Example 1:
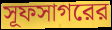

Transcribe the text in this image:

সূফসাগরের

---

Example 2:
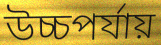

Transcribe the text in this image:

উচ্চপর্যায়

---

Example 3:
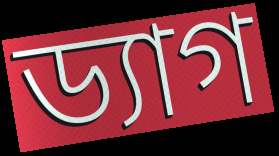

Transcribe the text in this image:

ড্যাগ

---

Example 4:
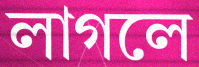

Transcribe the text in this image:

লাগলে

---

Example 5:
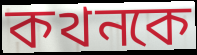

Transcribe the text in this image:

কথনকে